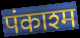
पंकाश्म